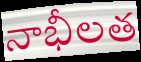
నాభీలత